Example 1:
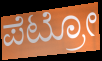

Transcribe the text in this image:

ಪೆಟ್ರೋ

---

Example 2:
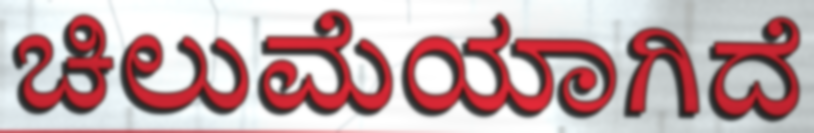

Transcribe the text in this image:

ಚಿಲುಮೆಯಾಗಿದೆ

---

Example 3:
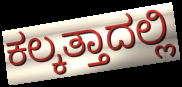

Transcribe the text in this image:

ಕಲ್ಕತ್ತಾದಲ್ಲಿ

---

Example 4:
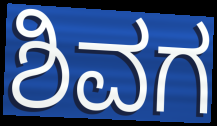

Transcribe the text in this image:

ಶಿವಗ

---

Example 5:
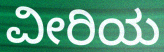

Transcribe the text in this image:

ವೀರಿಯ